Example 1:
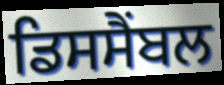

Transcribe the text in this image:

ਡਿਸਸੈਂਬਲ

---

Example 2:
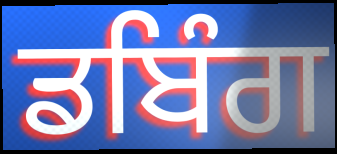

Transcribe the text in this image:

ਡਬਿੰਗ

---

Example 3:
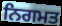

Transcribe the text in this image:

ਨਿਗਮਤ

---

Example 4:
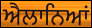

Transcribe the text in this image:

ਐਲਾਨਿਆਂ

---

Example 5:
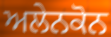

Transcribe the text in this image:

ਅਲੇਨਕੋਨ